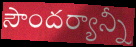
సౌందర్యాన్నీ